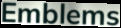
Emblems